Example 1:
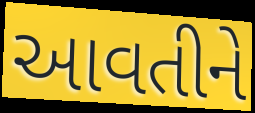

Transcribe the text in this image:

આવતીને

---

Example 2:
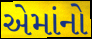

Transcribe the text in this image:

એમાંનો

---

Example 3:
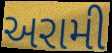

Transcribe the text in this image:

અરામી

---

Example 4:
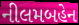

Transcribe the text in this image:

નીલમબહેન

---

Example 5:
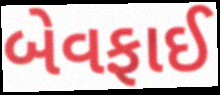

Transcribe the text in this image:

બેવફાઈ